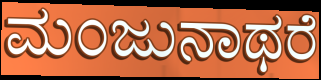
ಮಂಜುನಾಥರೆ